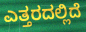
ಎತ್ತರದಲ್ಲಿದೆ